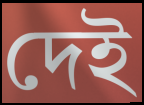
দেই